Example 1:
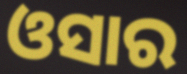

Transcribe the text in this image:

ଓସାର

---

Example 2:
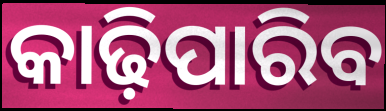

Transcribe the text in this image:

କାଢ଼ିପାରିବ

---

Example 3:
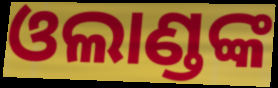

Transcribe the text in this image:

ଓଲାଣ୍ଡଙ୍କ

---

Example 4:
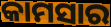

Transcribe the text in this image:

କାମସାର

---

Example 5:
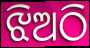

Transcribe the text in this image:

ଝିଅଠି